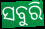
ସବୁରି